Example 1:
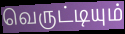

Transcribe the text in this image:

வெருட்டியும்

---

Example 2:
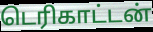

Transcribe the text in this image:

டெரிகாட்டன்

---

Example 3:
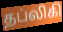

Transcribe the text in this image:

தப்லிகி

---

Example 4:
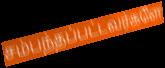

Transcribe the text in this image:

சம்பந்தப்பட்டவர்களே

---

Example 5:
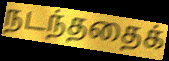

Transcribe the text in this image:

நடந்ததைக்